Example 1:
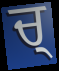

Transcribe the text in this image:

ਚ੍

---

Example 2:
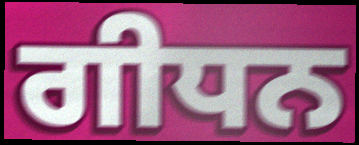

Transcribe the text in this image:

ਗੀਧਨ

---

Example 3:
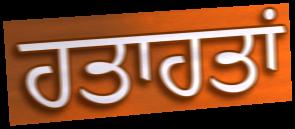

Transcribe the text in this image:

ਹਤਾਹਤਾਂ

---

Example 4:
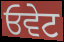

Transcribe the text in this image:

ਓਵੇਟ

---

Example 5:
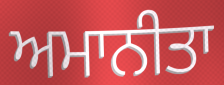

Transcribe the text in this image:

ਅਮਾਨੀਤਾ